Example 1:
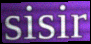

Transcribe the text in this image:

sisir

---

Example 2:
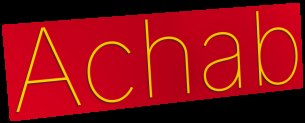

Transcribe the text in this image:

Achab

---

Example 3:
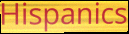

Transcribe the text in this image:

Hispanics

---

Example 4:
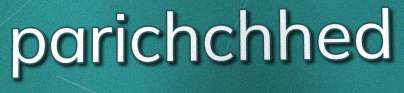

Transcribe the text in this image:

parichchhed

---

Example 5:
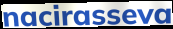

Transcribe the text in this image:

nacirasseva